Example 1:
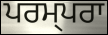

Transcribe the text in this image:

ਪਰਮ੍ਪਰਾ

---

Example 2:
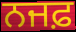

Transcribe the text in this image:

ਨਜਫ਼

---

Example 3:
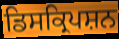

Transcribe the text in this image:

ਡਿਸਕ੍ਰਿਪਸ਼ਨ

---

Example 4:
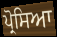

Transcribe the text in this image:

ਪ੍ਰੋਸਿਆ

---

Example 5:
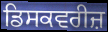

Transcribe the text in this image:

ਡਿਸਕਵਰੀਜ਼